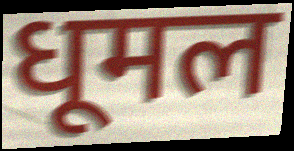
धूमल